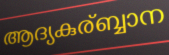
ആദ്യകുര്ബ്ബാന